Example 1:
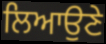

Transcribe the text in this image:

ਲਿਆਉਣੇ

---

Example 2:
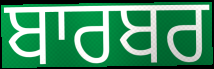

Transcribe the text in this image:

ਬਾਰਬਰ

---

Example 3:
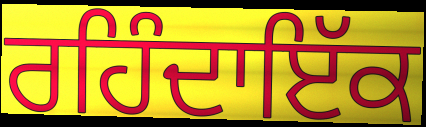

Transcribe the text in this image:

ਰਹਿੰਦਾਇੱਕ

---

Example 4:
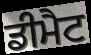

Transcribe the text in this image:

ਡੀਮੈਟ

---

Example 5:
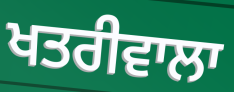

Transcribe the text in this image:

ਖਤਰੀਵਾਲਾ